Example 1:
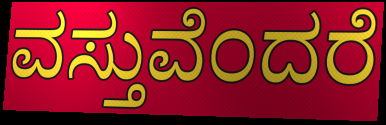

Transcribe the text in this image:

ವಸ್ತುವೆಂದರೆ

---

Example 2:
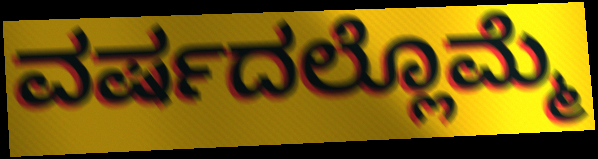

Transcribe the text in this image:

ವರ್ಷದಲ್ಲೊಮ್ಮೆ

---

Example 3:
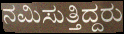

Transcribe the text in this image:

ನಮಿಸುತ್ತಿದ್ದರು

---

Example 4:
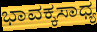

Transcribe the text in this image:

ಭಾವಕ್ಕಸಾಧ್ಯ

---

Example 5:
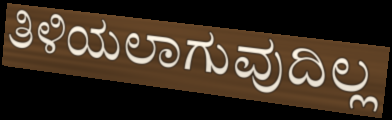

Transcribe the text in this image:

ತಿಳಿಯಲಾಗುವುದಿಲ್ಲ